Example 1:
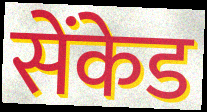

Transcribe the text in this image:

सेंकेड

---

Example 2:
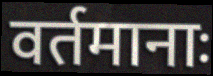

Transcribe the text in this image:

वर्तमानाः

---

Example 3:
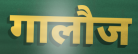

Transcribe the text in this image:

गालौज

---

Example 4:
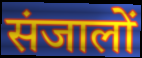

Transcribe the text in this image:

संजालों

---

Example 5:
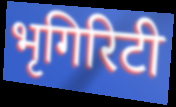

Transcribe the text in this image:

भृगिरिटी